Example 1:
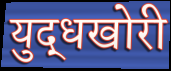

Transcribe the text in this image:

युद्धखोरी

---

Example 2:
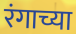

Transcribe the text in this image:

रंगाच्या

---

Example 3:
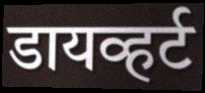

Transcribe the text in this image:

डायव्हर्ट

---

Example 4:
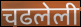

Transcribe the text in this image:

चढलेली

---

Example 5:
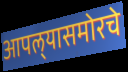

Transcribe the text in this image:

आपल्यासमोरचे